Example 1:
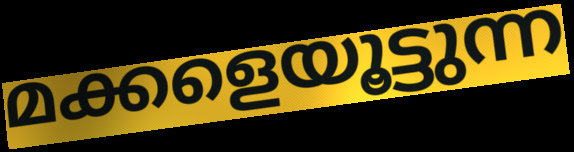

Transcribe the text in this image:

മക്കളെയൂട്ടുന്ന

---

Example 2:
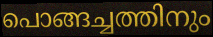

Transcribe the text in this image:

പൊങ്ങച്ചത്തിനും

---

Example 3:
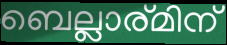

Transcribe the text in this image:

ബെല്ലാര്മിന്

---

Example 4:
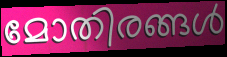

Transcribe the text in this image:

മോതിരങ്ങൾ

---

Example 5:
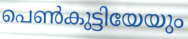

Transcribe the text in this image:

പെൺകുട്ടിയേയും